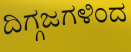
ದಿಗ್ಗಜಗಳಿಂದ